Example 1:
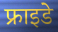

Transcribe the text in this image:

फ्राइडे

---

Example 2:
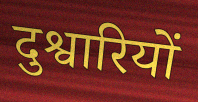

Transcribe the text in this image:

दुश्वारियों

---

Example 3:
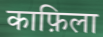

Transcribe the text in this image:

काफ़िला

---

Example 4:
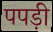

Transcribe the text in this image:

पपड़ी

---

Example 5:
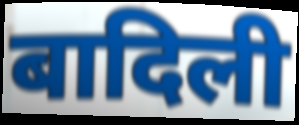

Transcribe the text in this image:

बादिली